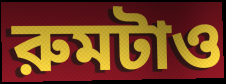
রুমটাও